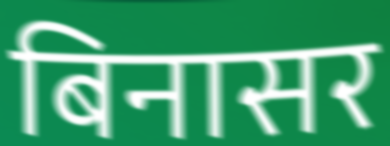
बिनासर